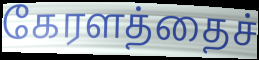
கேரளத்தைச்